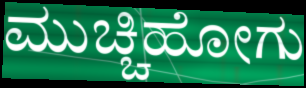
ಮುಚ್ಚಿಹೋಗು